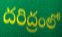
దరిద్రంలో